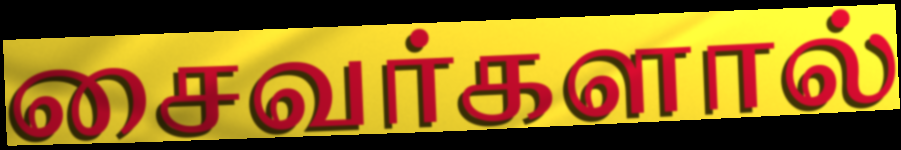
சைவர்களால்